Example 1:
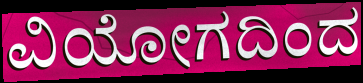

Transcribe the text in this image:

ವಿಯೋಗದಿಂದ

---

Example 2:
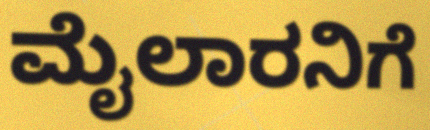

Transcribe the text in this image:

ಮೈಲಾರನಿಗೆ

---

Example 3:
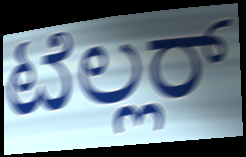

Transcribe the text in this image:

ಟೆಲ್ಲರ್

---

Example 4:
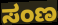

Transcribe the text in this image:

ಸಂಣ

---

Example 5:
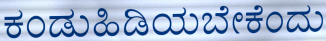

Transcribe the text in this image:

ಕಂಡುಹಿಡಿಯಬೇಕೆಂದು